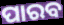
ପାରବ